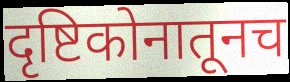
दृष्टिकोनातूनच